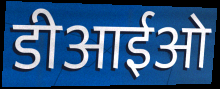
डीआईओ